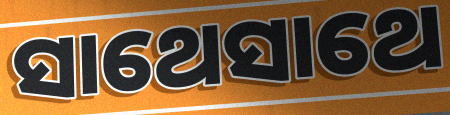
ସାଥେସାଥେ